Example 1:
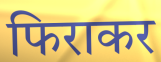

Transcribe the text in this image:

फिराकर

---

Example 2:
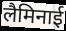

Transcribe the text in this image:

लैमिनाई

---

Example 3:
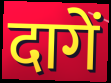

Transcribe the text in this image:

दागें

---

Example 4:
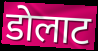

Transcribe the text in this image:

डोलाट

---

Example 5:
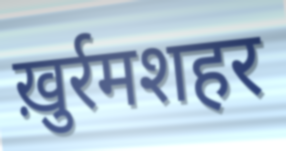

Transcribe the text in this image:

ख़ुर्रमशहर